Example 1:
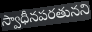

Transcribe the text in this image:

స్వాధీనపరతునని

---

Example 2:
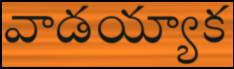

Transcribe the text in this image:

వాడయ్యాక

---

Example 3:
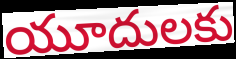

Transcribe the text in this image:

యూదులకు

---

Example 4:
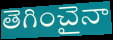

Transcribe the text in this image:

తెగించైనా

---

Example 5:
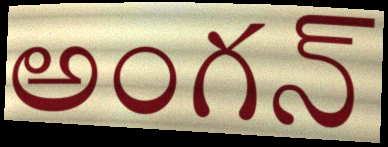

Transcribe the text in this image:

అంగన్